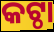
କଟ୍ଠା